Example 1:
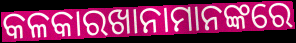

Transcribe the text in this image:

କଳକାରଖାନାମାନଙ୍କରେ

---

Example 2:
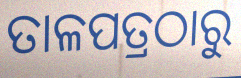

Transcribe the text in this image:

ତାଳପତ୍ରଠାରୁ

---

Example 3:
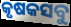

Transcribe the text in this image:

କୃଷକସବୁ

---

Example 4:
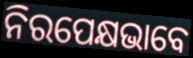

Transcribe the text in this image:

ନିରପେକ୍ଷଭାବେ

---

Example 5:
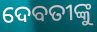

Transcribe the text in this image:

ଦେବତୀଙ୍କୁ